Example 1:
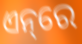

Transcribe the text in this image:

ଏନ୍‌ରେ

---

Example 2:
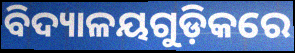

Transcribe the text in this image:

ବିଦ୍ୟାଳୟଗୁଡ଼ିକରେ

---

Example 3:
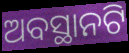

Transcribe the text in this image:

ଅବସ୍ଥାନଟି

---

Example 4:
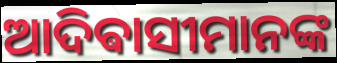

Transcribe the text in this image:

ଆଦିଵାସୀମାନଙ୍କ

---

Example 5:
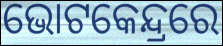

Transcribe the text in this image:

ଭୋଟକେନ୍ଦ୍ରରେ